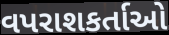
વપરાશકર્તાઓ